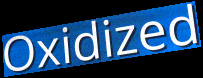
Oxidized